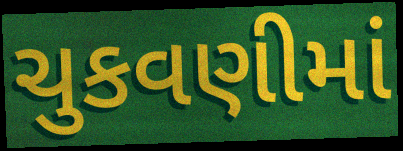
ચુકવણીમાં